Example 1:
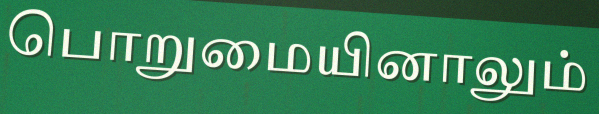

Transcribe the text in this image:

பொறுமையினாலும்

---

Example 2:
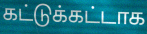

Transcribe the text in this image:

கட்டுக்கட்டாக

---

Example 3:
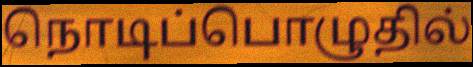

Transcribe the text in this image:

நொடிப்பொழுதில்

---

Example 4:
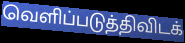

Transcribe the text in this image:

வெளிப்படுத்திவிடக்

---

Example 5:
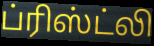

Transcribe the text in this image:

ப்ரிஸ்ட்லி